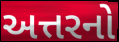
અત્તરનો